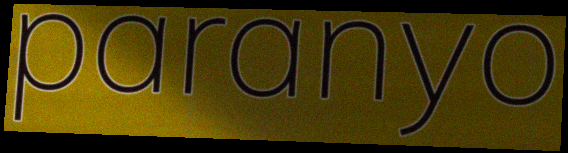
paranyo